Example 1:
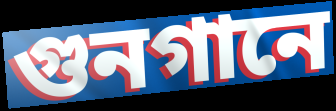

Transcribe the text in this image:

গুনগানে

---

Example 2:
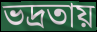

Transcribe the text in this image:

ভদ্রতায়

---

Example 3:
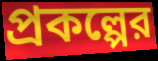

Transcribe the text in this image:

প্রকল্পের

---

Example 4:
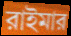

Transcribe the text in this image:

রাইমার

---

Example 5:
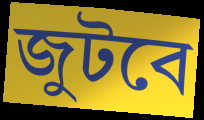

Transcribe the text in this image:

জুটবে